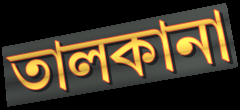
তালকানা